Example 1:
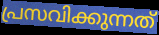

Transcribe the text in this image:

പ്രസവിക്കുന്നത്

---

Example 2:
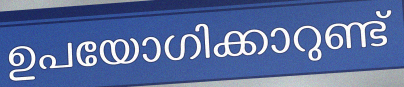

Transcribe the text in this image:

ഉപയോഗിക്കാറുണ്ട്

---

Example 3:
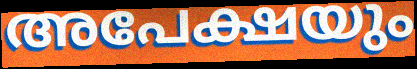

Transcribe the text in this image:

അപേക്ഷയും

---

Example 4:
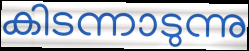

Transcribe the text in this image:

കിടന്നാടുന്നു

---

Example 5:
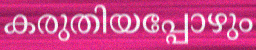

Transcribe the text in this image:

കരുതിയപ്പോഴും